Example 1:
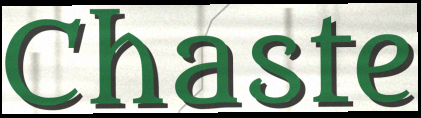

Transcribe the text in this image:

Chaste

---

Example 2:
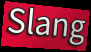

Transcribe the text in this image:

Slang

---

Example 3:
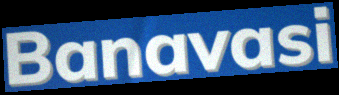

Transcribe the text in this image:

Banavasi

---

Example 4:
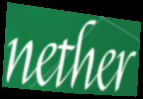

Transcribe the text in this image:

nether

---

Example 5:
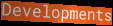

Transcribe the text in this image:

Developments